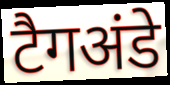
टैगअंडे